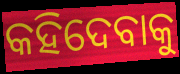
କହିଦେବାକୁ